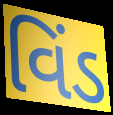
વિંડ